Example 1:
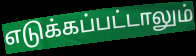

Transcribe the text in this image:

எடுக்கப்பட்டாலும்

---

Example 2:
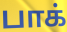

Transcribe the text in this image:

பாக்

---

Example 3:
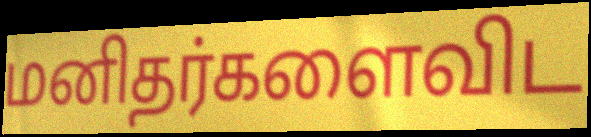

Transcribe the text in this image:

மனிதர்களைவிட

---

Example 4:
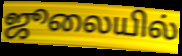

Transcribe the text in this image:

ஜூலையில்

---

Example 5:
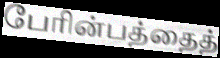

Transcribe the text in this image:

பேரின்பத்தைத்